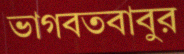
ভাগবতবাবুর